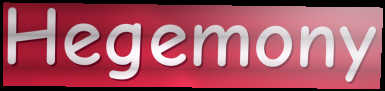
Hegemony